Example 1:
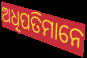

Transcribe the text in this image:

ଅଧିପତିମାନେ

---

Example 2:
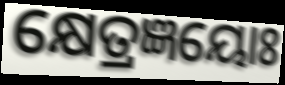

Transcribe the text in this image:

କ୍ଷେତ୍ରଜ୍ଞୟୋଃ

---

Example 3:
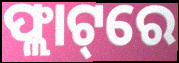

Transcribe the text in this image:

ଫ୍ଲାଟ୍‌ରେ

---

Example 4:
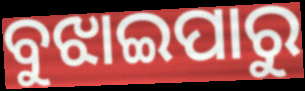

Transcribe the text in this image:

ବୁଝାଇପାରୁ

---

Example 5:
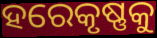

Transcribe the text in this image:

ହରେକୃଷ୍ଣକୁ